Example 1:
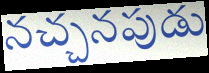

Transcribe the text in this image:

నచ్చనపుడు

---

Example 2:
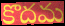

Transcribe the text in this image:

కొదమ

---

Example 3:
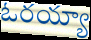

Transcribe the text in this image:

ఓరయ్యా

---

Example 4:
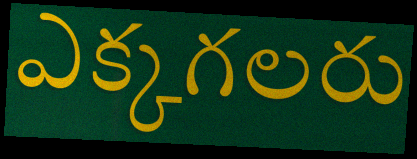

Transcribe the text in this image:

ఎక్కగలరు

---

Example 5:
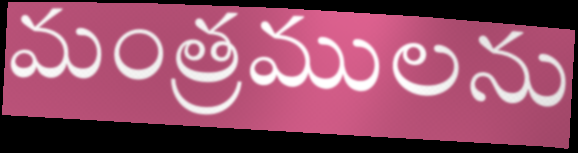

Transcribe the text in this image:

మంత్రములను